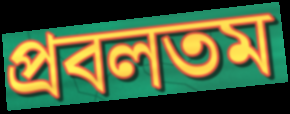
প্রবলতম